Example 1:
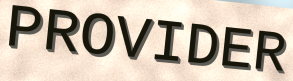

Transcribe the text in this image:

PROVIDER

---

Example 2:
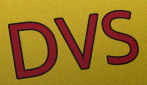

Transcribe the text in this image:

DVS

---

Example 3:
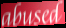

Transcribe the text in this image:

abused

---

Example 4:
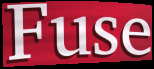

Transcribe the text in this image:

Fuse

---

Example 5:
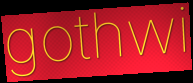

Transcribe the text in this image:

gothwi